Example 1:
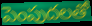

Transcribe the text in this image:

పెంపుదలతో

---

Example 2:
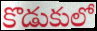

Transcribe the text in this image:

కొడుకులో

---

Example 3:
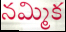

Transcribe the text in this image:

నమ్మిక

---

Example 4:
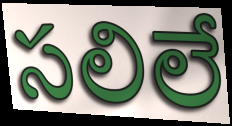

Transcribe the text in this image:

సలిలే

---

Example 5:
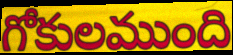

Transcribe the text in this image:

గోకులముంది